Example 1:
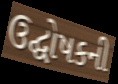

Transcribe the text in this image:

ઉદ્ઘોષકની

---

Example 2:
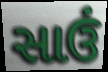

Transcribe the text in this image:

સાઉં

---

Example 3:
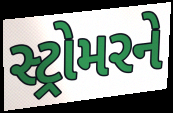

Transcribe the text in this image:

સ્ટ્રોમરને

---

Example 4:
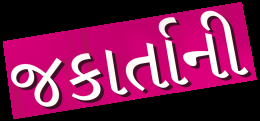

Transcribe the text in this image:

જકાર્તાની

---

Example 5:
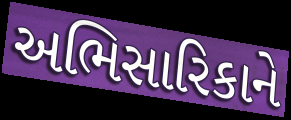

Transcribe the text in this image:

અભિસારિકાને